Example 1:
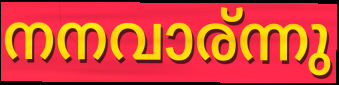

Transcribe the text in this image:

നനവാര്ന്നു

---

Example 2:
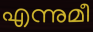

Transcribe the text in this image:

എന്നുമീ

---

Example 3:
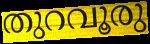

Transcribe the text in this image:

തുറവൂരു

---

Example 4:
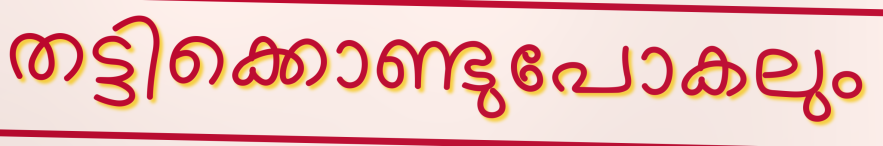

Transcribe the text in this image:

തട്ടിക്കൊണ്ടുപോകലും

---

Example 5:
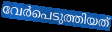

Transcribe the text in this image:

വേർപെടുത്തിയത്